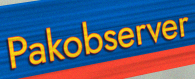
Pakobserver